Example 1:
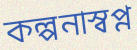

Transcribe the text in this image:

কল্পনাস্বপ্ন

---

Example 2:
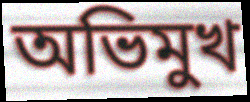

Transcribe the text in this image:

অভিমুখ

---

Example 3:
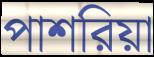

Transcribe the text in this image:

পাশরিয়া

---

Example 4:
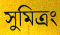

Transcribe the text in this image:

সুমিত্রং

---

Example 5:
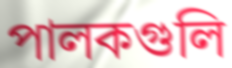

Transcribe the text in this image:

পালকগুলি